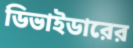
ডিভাইডারের